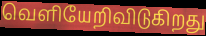
வெளியேறிவிடுகிறது